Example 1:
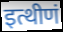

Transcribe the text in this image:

इत्थीणं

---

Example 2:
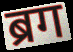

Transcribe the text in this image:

ब्रग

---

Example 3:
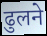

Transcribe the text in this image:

ढुलने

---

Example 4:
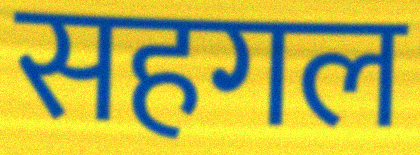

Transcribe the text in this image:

सहगल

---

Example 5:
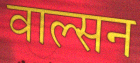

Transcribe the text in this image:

वाल्सन